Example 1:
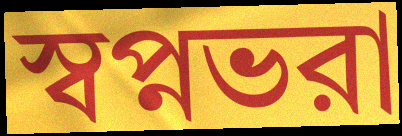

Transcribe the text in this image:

স্বপ্নভরা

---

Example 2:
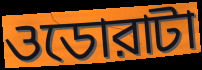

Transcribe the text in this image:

ওডোরাটা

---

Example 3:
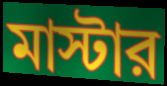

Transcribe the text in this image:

মাস্টার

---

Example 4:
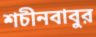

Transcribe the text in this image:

শচীনবাবুর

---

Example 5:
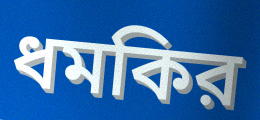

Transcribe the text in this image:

ধমকির